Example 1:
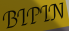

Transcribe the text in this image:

BIPIN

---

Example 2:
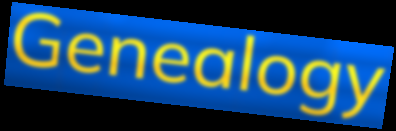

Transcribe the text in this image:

Genealogy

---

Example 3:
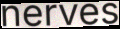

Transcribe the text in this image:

nerves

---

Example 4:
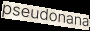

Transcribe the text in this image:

pseudonana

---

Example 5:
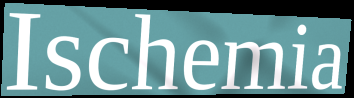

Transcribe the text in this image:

Ischemia